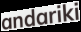
andariki